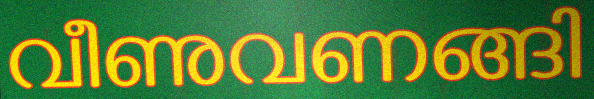
വീണുവണങ്ങി